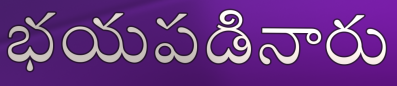
భయపడినారు